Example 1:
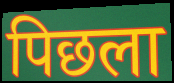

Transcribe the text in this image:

पिछला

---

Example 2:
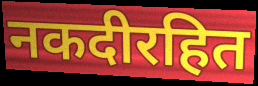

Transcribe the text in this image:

नकदीरहित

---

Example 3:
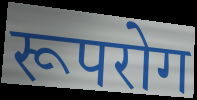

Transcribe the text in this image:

रूपरोग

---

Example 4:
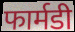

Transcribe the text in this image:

फार्मडी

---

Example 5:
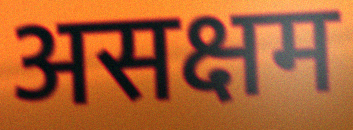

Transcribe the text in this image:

असक्षम